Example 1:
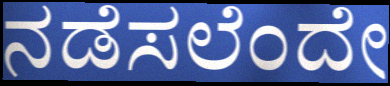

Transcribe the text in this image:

ನಡೆಸಲೆಂದೇ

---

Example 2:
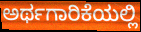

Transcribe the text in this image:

ಅರ್ಥಗಾರಿಕೆಯಲ್ಲಿ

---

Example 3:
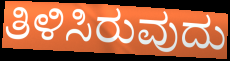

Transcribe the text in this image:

ತಿಳಿಸಿರುವುದು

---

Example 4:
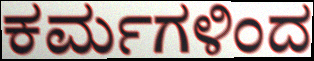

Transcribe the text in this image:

ಕರ್ಮಗಳಿಂದ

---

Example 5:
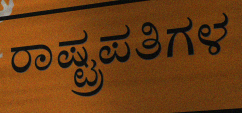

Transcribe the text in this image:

ರಾಷ್ಟ್ರಪತಿಗಳ